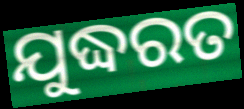
ଯୁଦ୍ଧରତ